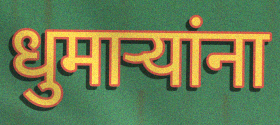
धुमाऱ्यांना